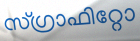
സ്ഗ്രാഫിറ്റോ